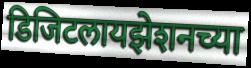
डिजिटलायझेशनच्या